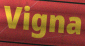
Vigna